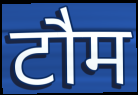
टौम